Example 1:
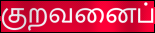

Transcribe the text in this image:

குறவனைப்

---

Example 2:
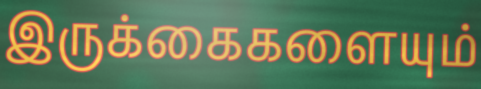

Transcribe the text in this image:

இருக்கைகளையும்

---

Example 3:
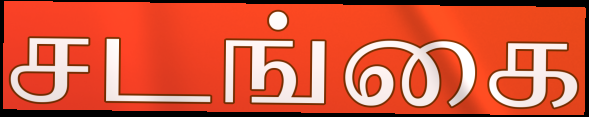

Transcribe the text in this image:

சடங்கை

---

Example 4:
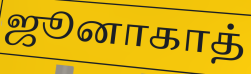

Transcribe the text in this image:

ஜூனாகாத்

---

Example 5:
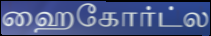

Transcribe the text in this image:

ஹைகோர்ட்ல